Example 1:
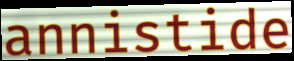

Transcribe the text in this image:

annistide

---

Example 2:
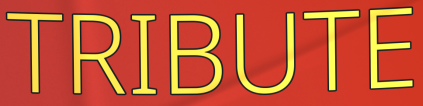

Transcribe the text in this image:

TRIBUTE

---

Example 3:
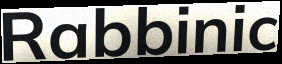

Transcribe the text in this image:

Rabbinic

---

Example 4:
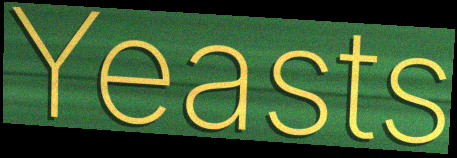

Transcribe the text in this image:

Yeasts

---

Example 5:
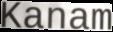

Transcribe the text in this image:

Kanam